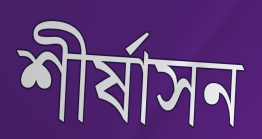
শীর্ষাসন